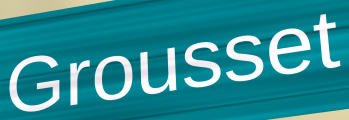
Grousset